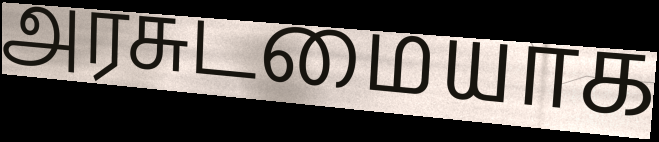
அரசுடமையாக